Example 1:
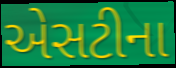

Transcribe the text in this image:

એસટીના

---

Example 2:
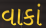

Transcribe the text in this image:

વાકાં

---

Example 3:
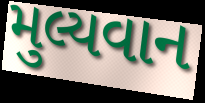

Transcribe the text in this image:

મુલ્યવાન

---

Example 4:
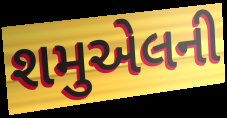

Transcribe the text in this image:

શમુએલની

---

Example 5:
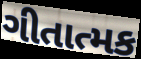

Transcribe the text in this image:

ગીતાત્મક